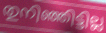
തുനിഞ്ഞിട്ടില്ല